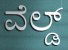
ವೆಲ್ಡ್